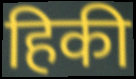
हिकी